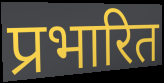
प्रभारित